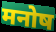
मनोष